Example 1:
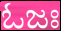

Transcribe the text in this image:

ಓಜಃ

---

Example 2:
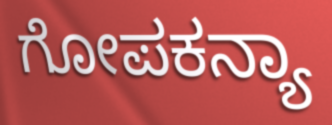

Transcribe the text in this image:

ಗೋಪಕನ್ಯಾ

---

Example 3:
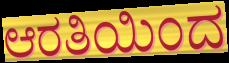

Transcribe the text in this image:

ಆರತಿಯಿಂದ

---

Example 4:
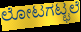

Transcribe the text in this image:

ಲೋಟಗಟ್ಟಲೆ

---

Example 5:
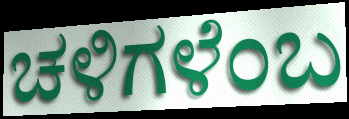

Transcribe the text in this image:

ಚಳಿಗಳೆಂಬ